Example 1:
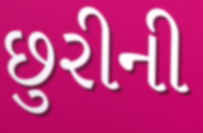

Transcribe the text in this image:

છુરીની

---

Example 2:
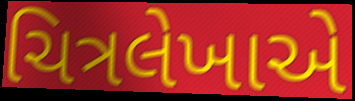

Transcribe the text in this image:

ચિત્રલેખાએ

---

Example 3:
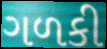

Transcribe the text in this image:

ગળકી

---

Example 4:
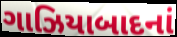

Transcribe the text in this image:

ગાઝિયાબાદનાં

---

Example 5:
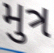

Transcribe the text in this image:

મુત્ર